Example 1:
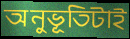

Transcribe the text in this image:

অনুভূতিটাই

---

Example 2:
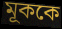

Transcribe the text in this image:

মূককে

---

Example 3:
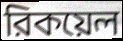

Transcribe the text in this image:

রিকয়েল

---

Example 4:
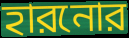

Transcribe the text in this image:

হারনোর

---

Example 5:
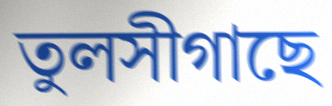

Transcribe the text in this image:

তুলসীগাছে